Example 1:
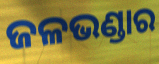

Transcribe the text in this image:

ଜଳଭଣ୍ଡାର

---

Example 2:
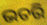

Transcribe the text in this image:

ଭତରି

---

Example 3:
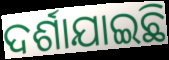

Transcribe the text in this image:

ଦର୍ଶାଯାଇଛି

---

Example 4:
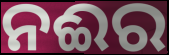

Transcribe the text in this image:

ନଈର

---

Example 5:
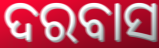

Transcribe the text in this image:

ଦରବାସ